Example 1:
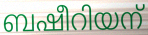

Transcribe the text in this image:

ബഷീറിയന്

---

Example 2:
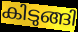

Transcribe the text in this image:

കിടുങ്ങി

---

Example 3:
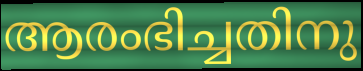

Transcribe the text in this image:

ആരംഭിച്ചതിനു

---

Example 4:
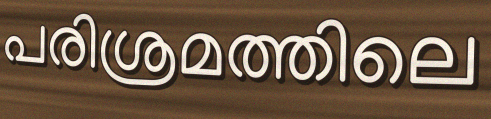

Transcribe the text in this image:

പരിശ്രമത്തിലെ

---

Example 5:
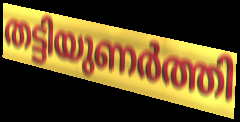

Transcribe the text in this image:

തട്ടിയുണർത്തി